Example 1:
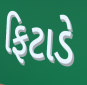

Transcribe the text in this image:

ફિટાડે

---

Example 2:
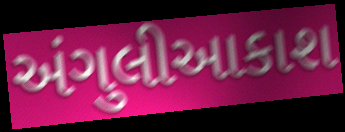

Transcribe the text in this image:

અંગુલીઆકાશ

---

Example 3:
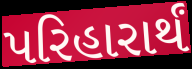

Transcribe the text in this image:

પરિહારાર્થં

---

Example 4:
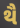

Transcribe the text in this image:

થૈ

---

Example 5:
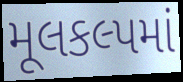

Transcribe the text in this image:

મૂલકલ્પમાં